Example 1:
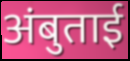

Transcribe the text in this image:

अंबुताई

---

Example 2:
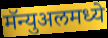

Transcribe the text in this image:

मॅन्युअलमध्ये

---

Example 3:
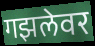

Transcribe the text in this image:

गझलेवर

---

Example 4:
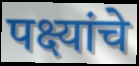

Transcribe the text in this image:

पक्ष्यांचे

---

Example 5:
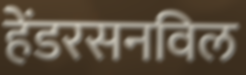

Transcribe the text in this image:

हेंडरसनविल